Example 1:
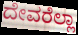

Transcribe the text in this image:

ದೇವರೆಲ್ಲಾ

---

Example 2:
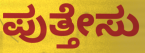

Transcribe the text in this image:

ಪುತ್ತೇಸು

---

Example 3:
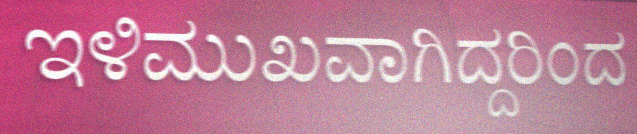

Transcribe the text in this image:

ಇಳಿಮುಖವಾಗಿದ್ದರಿಂದ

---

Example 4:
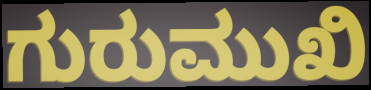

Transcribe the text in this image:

ಗುರುಮುಖಿ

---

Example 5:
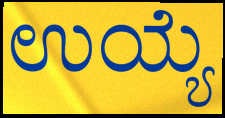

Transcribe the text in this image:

ಉಯ್ಯೆ